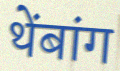
थेंबांग